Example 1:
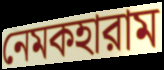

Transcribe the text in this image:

নেমকহারাম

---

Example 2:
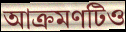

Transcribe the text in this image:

আক্রমণটিও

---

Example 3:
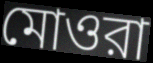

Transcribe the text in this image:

মোওরা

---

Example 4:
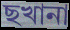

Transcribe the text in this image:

ছখানা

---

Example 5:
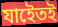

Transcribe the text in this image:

যাইেতই